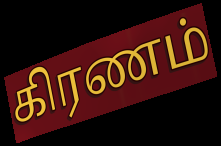
கிரணம்